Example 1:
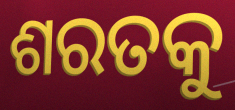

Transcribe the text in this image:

ଶରତକୁ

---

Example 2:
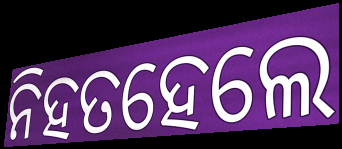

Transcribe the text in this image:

ନିହତହେଲେ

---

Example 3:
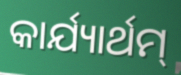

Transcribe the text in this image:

କାର୍ଯ୍ୟାର୍ଥମ୍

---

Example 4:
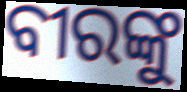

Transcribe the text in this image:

ବୀରଙ୍କୁ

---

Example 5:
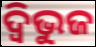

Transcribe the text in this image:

ଦ୍ଵିଭୁଜ